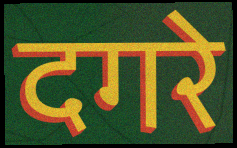
दगरे